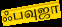
ஃபவுஜா